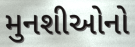
મુનશીઓનો